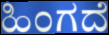
ಹಿಂಗದೆ